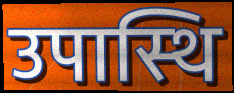
उपास्थि